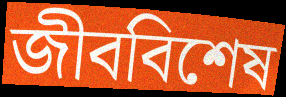
জীববিশেষ